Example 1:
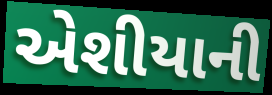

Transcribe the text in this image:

એશીયાની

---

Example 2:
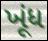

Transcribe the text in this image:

ખૂંધ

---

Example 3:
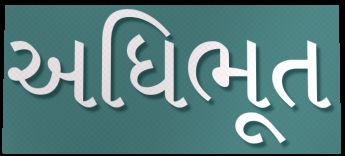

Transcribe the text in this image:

અધિભૂત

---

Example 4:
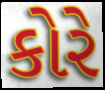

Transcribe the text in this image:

કોરે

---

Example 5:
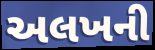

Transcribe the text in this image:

અલખની